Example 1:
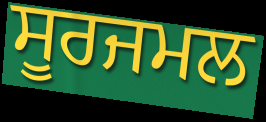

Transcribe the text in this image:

ਸੂਰਜਮਲ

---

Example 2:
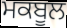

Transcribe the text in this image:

ਮਕਬੂਲ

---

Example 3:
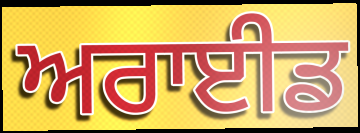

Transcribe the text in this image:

ਅਰਾਈਡ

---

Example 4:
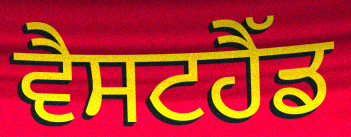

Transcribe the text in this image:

ਵੈਸਟਹੈੱਡ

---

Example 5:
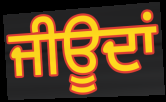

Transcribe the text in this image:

ਜੀਊਦਾਂ